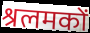
श्रलमकों